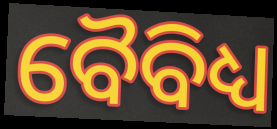
ବୈବିଧ୍ୟ